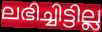
ലഭിച്ചിട്ടില്ല